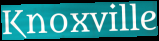
Knoxville